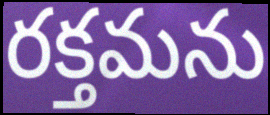
రక్తమను